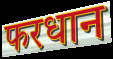
फरधान